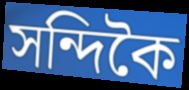
সন্দিকৈ